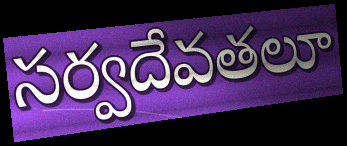
సర్వదేవతలూ